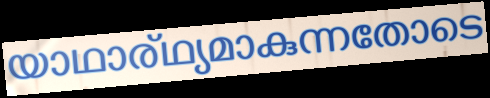
യാഥാര്ഥ്യമാകുന്നതോടെ